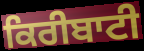
ਕਿਰੀਬਾਟੀ